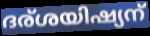
ദര്ശയിഷ്യന്